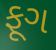
ફૂગ